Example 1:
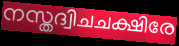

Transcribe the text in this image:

നസ്തദ്വിചചക്ഷിരേ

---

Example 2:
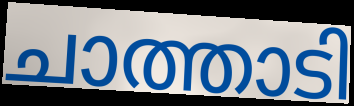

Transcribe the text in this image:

ചാത്താടി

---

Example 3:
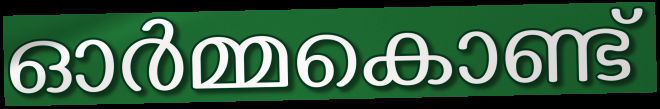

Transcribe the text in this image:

ഓർമ്മകൊണ്ട്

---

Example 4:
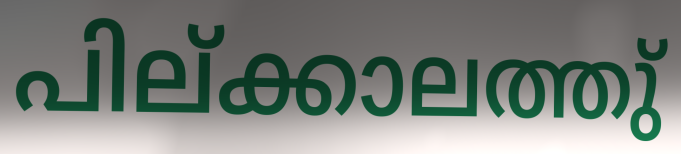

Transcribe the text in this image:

പില്ക്കാലത്തു്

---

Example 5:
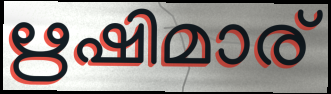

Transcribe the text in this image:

ഋഷിമാര്